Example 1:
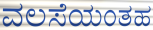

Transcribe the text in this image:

ವಲಸೆಯಂತಹ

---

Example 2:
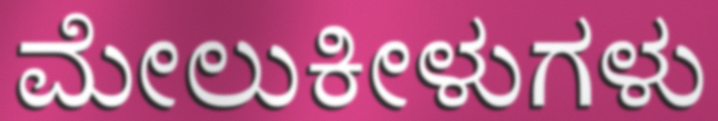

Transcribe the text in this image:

ಮೇಲುಕೀಳುಗಳು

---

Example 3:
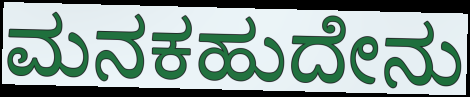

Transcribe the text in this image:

ಮನಕಹುದೇನು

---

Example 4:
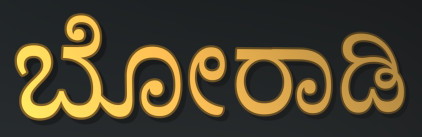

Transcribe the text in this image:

ಬೋರಾಡಿ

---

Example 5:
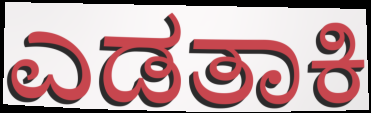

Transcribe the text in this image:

ಎಡತಾಕಿ